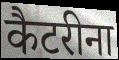
कैटरीना